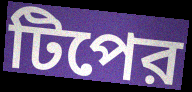
টিপের